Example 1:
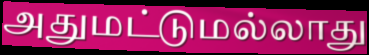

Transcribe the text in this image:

அதுமட்டுமல்லாது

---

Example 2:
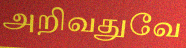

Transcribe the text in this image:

அறிவதுவே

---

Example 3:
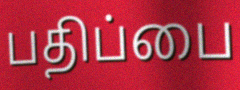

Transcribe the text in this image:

பதிப்பை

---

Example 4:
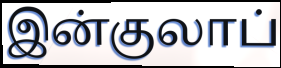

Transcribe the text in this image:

இன்குலாப்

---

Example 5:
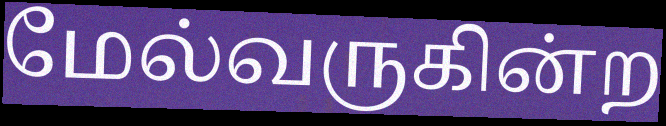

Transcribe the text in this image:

மேல்வருகின்ற